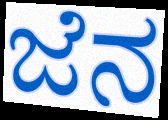
ಜೆನ